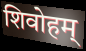
शिवोहम्